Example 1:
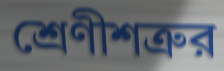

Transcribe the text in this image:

শ্রেণীশত্রুর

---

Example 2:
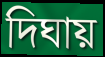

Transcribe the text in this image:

দিঘায়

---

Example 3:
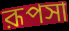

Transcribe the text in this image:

রূপসা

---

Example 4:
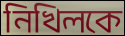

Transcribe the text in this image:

নিখিলকে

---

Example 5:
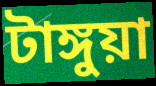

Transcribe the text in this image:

টাঙ্গুয়া